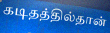
கடிதத்தில்தான்